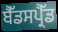
ਬੈੱਡਸਪ੍ਰੈੱਡ